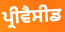
ਪ੍ਰੀਵੈਸੀਡ